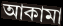
আকামা